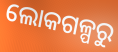
ଲୋକଗଳ୍ପରୁ